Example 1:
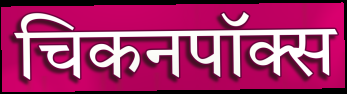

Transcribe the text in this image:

चिकनपॉक्स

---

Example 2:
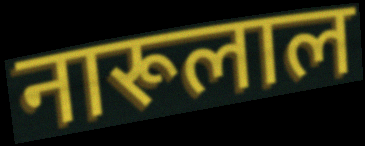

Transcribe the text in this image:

नारूलाल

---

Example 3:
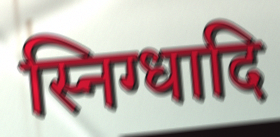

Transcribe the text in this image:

स्निग्धादि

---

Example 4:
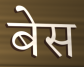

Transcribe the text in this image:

बेस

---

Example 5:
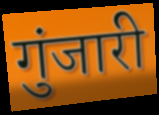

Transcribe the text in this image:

गुंजारी